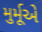
મુર્મૂએ